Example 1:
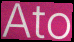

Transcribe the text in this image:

Ato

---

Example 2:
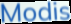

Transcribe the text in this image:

Modis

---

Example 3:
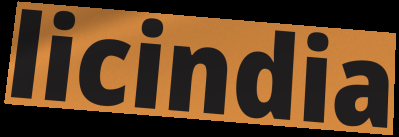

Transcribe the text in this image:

licindia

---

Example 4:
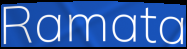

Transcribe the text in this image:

Ramata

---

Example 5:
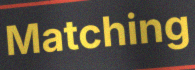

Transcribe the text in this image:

Matching